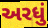
અરધું